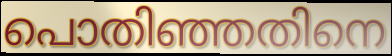
പൊതിഞ്ഞതിനെ